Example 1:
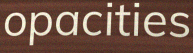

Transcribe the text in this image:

opacities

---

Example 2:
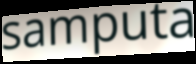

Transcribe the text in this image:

samputa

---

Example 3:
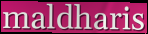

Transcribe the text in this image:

maldharis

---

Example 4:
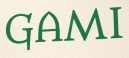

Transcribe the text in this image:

GAMI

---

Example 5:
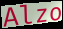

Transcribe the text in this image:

Alzo